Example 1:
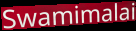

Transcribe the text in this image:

Swamimalai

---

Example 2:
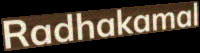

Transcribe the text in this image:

Radhakamal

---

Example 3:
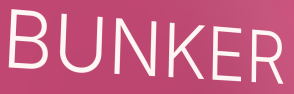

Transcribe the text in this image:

BUNKER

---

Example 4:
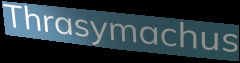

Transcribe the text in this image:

Thrasymachus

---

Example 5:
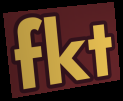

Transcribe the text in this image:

fkt